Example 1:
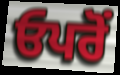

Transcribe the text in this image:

ਓਪਰੋਂ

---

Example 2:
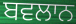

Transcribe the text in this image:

ਬਵਲਾਨ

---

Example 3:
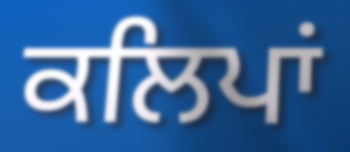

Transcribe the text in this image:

ਕਲਿਪਾਂ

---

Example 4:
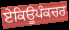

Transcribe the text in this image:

ਏਕਿਊਪੰਕਚਰ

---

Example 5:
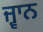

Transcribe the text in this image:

ਜ੍ਵਾਨ